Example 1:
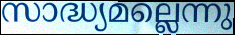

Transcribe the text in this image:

സാദ്ധ്യമല്ലെന്നു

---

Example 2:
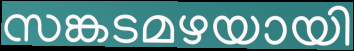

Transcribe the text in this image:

സങ്കടമഴയായി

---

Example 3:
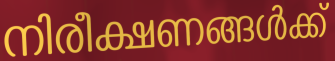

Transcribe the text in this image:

നിരീക്ഷണങ്ങൾക്ക്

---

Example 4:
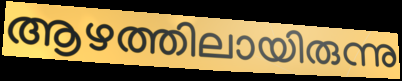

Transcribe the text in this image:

ആഴത്തിലായിരുന്നു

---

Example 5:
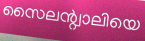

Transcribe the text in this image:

സൈലന്റ്വാലിയെ